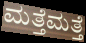
ಮತ್ತೆಮತ್ತೆ